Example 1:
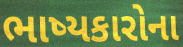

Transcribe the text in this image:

ભાષ્યકારોના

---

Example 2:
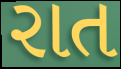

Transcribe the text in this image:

રાત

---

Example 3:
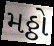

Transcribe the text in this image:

મઠ્ઠો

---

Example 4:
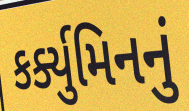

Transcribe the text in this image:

કર્ક્યુમિનનું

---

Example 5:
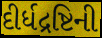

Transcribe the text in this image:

દીર્ધદ્રષ્ટિની